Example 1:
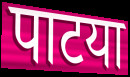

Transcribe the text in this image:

पाटया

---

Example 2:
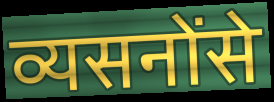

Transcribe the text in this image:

व्यसनोंसे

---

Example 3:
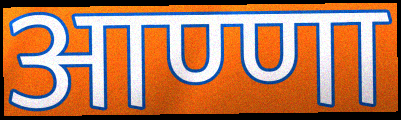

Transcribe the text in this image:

आण्णा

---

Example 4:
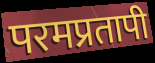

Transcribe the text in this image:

परमप्रतापी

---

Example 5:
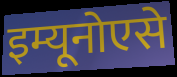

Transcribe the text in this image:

इम्यूनोएसे